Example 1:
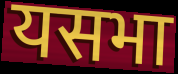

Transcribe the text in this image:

यसभा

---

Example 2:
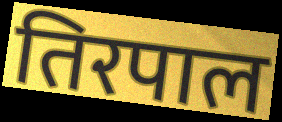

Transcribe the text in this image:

तिरपाल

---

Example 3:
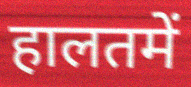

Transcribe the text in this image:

हालतमें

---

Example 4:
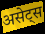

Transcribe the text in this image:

असेट्स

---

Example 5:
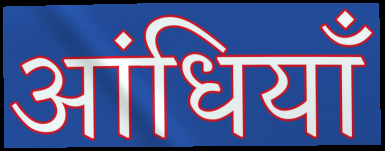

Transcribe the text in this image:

आंधियाँ